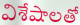
విశేషాలతో